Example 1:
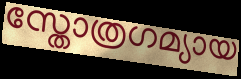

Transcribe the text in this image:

സ്തോത്രഗമ്യായ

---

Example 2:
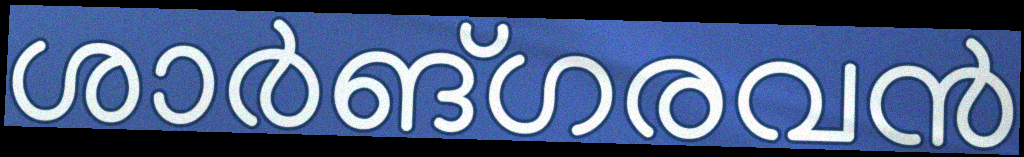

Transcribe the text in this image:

ശാർങ്ഗരവൻ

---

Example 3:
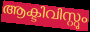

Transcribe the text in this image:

ആക്ടിവിസ്റ്റും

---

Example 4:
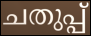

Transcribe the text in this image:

ചതുപ്പ്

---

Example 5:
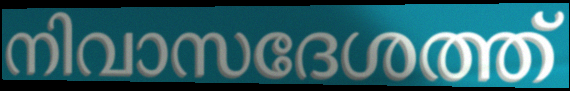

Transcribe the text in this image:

നിവാസദേശത്ത്